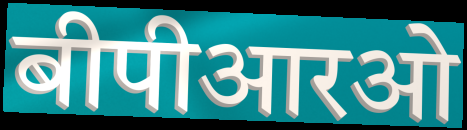
बीपीआरओ